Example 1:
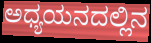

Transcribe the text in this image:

ಅಧ್ಯಯನದಲ್ಲಿನ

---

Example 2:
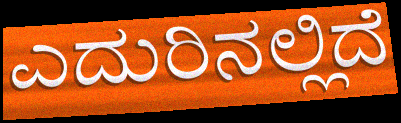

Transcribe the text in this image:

ಎದುರಿನಲ್ಲಿದೆ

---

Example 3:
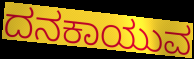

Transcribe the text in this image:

ದನಕಾಯುವ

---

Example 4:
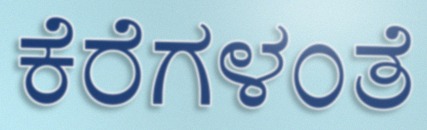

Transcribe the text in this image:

ಕೆರೆಗಳಂತೆ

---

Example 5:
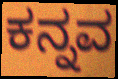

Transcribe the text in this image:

ಕನ್ನವ